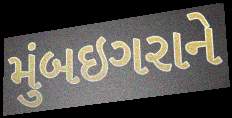
મુંબઇગરાને